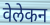
वेलेकन